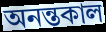
অনন্তকাল